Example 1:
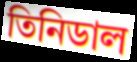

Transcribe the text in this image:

তিনিডাল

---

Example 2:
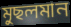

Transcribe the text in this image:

মুছলমান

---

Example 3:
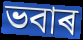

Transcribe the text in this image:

ভবাৰ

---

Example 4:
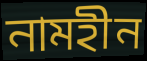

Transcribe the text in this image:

নামহীন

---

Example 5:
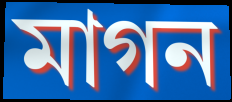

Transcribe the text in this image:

মাগন